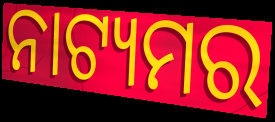
ନାଟ୍ୟମର